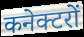
कनेक्टरों